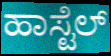
ಹಾಸ್ಟೆಲ್